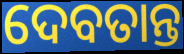
ଦେବତାନ୍ତ